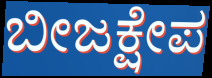
ಬೀಜಕ್ಷೇಪ